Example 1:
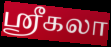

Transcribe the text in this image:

ஶ்ரீகலா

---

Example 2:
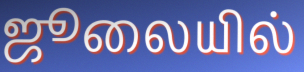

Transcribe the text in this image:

ஜூலையில்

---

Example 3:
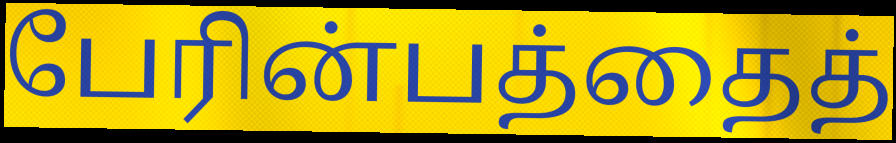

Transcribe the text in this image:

பேரின்பத்தைத்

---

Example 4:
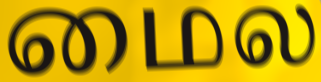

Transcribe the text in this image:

மைல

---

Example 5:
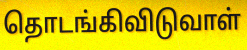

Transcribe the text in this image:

தொடங்கிவிடுவாள்